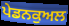
ਪੇਡਨਕੁਅਲ